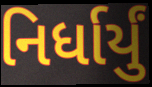
નિર્ધાર્યું